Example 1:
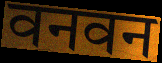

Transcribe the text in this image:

वनवन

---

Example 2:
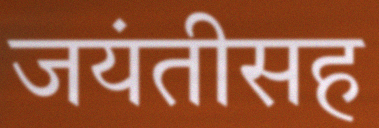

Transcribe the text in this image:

जयंतीसह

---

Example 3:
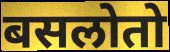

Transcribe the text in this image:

बसलोतो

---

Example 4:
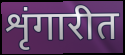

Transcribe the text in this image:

शृंगारीत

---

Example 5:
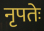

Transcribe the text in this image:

नृपतेः